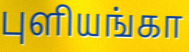
புளியங்கா